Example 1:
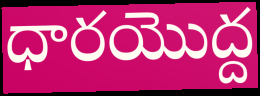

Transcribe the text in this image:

ధారయొద్ద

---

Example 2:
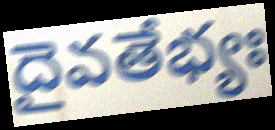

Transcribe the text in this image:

దైవతేభ్యః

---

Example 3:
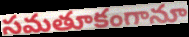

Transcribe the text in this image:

సమతూకంగానూ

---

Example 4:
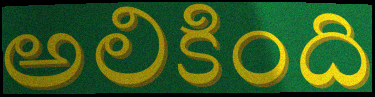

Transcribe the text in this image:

అలికింది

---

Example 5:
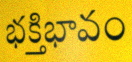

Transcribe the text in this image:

భక్తిభావం